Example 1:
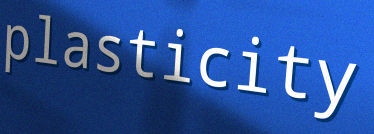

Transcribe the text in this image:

plasticity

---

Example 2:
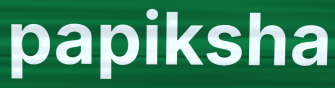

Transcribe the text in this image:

papiksha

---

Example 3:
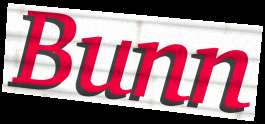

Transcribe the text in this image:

Bunn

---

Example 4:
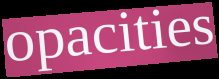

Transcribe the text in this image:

opacities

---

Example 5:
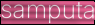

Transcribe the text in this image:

samputa